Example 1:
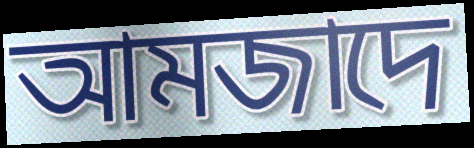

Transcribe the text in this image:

আমজাদে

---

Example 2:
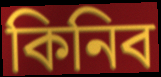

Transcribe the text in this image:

কিনিব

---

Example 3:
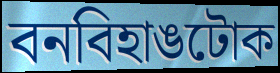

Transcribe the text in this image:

বনবিহাঙটোক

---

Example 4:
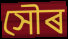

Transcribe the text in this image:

সৌৰ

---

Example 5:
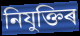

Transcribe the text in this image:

নিযুক্তিৰ